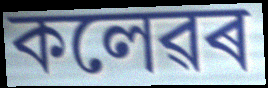
কলেৱৰ